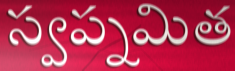
స్వప్నమిత